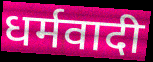
धर्मवादी